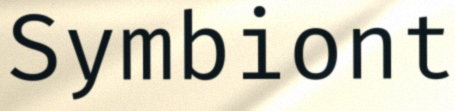
Symbiont